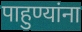
पाहुण्यांना